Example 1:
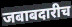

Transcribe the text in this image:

जबाबदारीच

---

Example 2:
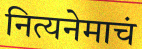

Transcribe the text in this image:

नित्यनेमाचं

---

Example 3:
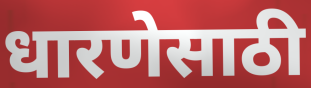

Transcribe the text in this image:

धारणेसाठी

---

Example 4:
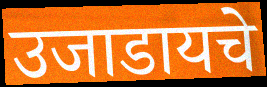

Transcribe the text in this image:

उजाडायचे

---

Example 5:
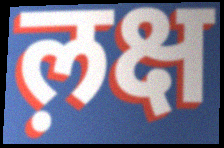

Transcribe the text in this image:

ल़क्ष